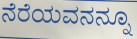
ನೆರೆಯವನನ್ನೂ